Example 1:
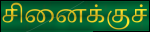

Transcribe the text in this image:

சினைக்குச்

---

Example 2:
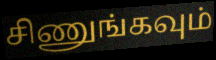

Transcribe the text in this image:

சிணுங்கவும்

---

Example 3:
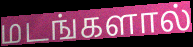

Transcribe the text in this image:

மடங்களால்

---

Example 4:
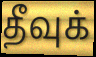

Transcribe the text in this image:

தீவுக்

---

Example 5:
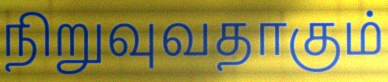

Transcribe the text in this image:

நிறுவுவதாகும்